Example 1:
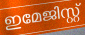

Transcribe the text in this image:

ഇമേജിസ്റ്റ്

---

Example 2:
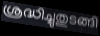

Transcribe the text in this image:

ശ്രദ്ധിച്ചുതുടങ്ങി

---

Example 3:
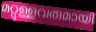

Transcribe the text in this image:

മറ്റുള്ളവരുമായി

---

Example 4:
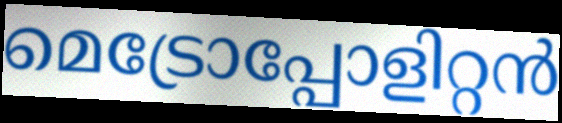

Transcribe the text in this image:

മെട്രോപ്പോളിറ്റൻ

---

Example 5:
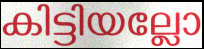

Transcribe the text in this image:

കിട്ടിയല്ലോ